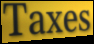
Taxes